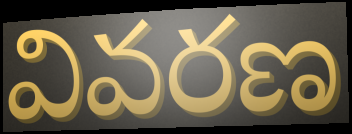
వివరణ